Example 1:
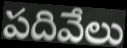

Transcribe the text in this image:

పదివేలు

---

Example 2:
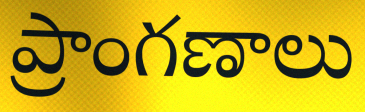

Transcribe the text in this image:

ప్రాంగణాలు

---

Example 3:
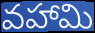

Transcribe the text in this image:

వహామి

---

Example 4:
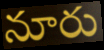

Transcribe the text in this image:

నూరు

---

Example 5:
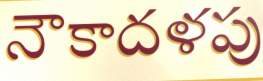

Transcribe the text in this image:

నౌకాదళపు